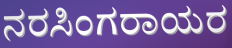
ನರಸಿಂಗರಾಯರ